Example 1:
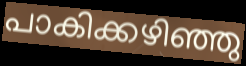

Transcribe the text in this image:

പാകിക്കഴിഞ്ഞു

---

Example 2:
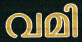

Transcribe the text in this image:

വമി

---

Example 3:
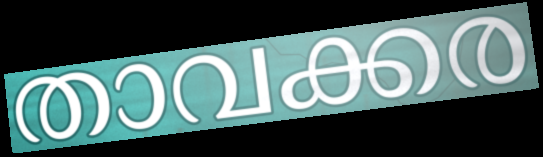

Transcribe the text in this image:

താവക്കര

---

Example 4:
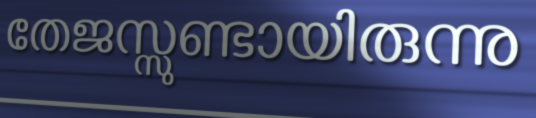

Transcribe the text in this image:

തേജസ്സുണ്ടായിരുന്നു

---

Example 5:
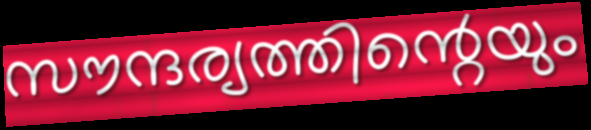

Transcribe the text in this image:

സൗന്ദര്യത്തിന്റെയും